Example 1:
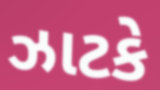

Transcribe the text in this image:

ઝાટકે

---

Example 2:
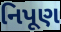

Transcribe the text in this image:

નિપૂણ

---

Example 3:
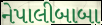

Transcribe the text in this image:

નેપાલીબાબા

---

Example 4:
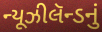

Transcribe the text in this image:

ન્યૂઝીલૅન્ડનું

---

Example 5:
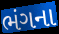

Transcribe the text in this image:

ભંગના